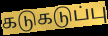
கடுகடுப்பு